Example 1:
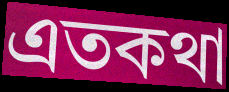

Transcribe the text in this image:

এতকথা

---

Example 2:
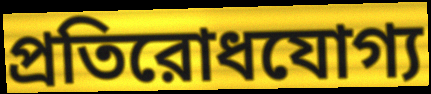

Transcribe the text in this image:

প্রতিরোধযোগ্য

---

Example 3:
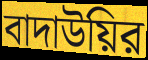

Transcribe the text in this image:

বাদাউয়ির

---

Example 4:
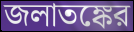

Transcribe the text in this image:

জলাতঙ্কের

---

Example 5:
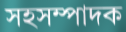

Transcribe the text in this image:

সহসম্পাদক